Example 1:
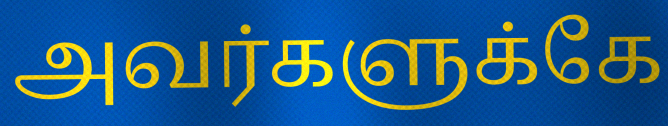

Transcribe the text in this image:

அவர்களுக்கே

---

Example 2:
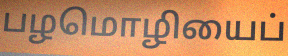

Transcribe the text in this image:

பழமொழியைப்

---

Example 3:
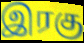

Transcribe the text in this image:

இரகு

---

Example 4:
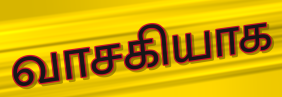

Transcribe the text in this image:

வாசகியாக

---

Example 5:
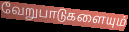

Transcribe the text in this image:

வேறுபாடுகளையும்